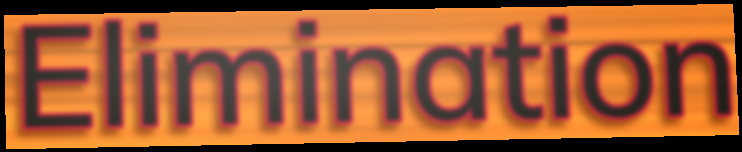
Elimination